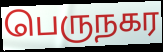
பெருநகர